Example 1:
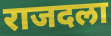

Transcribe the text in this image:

राजदला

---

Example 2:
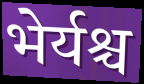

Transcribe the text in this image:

भेर्यश्च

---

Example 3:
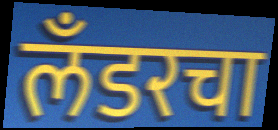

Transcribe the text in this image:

लँडरचा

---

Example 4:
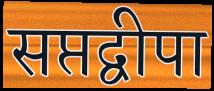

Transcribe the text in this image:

सप्तद्वीपा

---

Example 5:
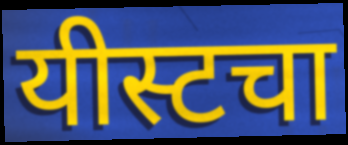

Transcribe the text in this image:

यीस्टचा